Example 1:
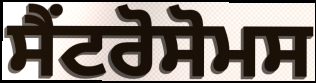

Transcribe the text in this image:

ਸੈਂਟਰੋਸੋਮਸ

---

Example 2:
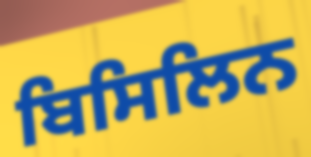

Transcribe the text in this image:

ਬਿਸਿਲਿਨ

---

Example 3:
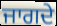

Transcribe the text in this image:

ਜਾਗਦੇ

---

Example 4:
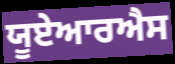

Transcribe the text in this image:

ਯੂਏਆਰਐਸ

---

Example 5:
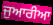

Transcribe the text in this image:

ਜੁਆਰੀਆ